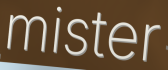
mister